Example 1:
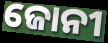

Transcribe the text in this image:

ଜୋନୀ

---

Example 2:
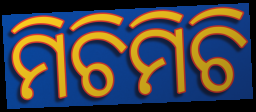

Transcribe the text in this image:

ମିଚିମିଚି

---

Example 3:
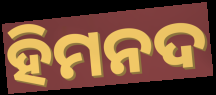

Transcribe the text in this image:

ହିମନଦ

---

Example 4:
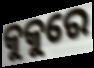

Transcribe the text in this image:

କୁକୁରେ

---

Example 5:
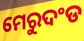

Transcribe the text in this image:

ମେରୁଦଂଡ